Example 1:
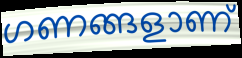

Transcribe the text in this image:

ഗണങ്ങളാണ്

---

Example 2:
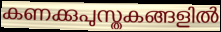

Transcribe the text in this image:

കണക്കുപുസ്തകങ്ങളിൽ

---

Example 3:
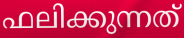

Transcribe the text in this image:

ഫലിക്കുന്നത്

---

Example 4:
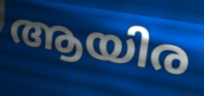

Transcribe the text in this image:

ആയിര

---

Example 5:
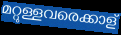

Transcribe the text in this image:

മറ്റുള്ളവരെക്കാള്